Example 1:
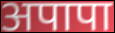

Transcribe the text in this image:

अपापा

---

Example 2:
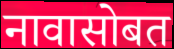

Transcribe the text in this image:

नावासोबत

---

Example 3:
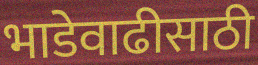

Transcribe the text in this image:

भाडेवाढीसाठी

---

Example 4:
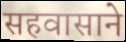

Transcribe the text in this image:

सहवासाने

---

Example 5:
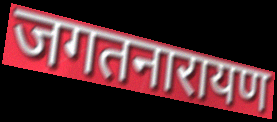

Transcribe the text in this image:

जगतनारायण